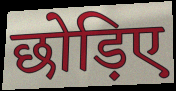
छोड़िए